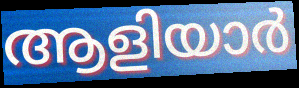
ആളിയാർ